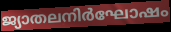
ജ്യാതലനിർഘോഷം